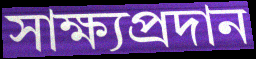
সাক্ষ্যপ্রদান